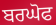
ਬਰਘੋਫ